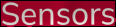
Sensors